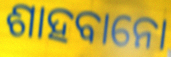
ଶାହବାନୋ